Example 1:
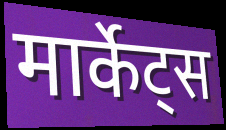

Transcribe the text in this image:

मार्केट्स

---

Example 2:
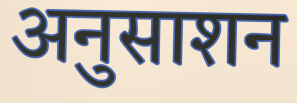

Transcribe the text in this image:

अनुसाशन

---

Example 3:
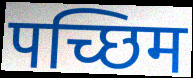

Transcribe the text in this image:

पच्छिम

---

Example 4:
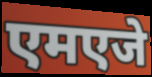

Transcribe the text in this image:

एमएजे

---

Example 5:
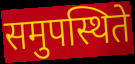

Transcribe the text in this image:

समुपस्थिते